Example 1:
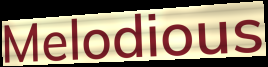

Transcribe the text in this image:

Melodious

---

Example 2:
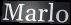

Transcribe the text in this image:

Marlo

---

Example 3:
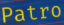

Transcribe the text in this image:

Patro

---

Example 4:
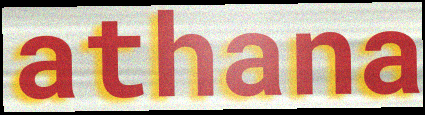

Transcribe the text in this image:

athana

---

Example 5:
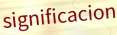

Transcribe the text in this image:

significacion